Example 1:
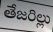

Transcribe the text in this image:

తేజరిల్లు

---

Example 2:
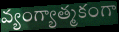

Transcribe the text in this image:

వ్యంగ్యాత్మకంగా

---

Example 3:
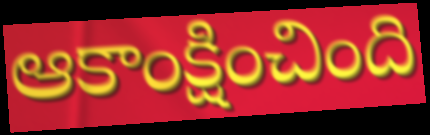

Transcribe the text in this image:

ఆకాంక్షించింది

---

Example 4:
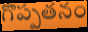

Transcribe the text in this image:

గొప్పతనం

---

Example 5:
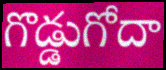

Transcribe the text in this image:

గొడ్డుగోదా